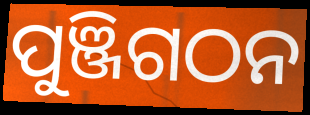
ପୁଞ୍ଜିଗଠନ